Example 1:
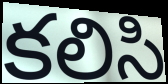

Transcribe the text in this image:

కలిసి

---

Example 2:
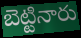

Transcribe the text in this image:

బెట్టినారు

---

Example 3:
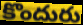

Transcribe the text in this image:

కొందురు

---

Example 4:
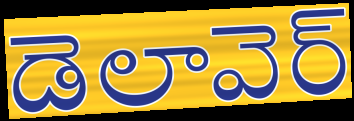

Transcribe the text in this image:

డెలావెర్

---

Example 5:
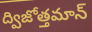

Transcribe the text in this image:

ద్విజోత్తమాన్